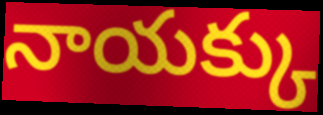
నాయక్కు